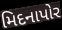
મિદનાપોર